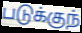
படுக்குந்